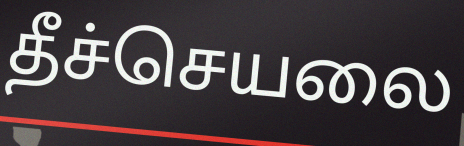
தீச்செயலை